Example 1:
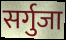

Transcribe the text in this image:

सर्गुजा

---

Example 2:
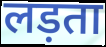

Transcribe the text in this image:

लड़ता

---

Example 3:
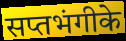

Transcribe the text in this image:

सप्तभंगीके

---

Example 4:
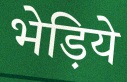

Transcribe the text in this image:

भेड़िये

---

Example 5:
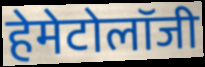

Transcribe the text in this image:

हेमेटोलॉजी